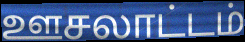
ஊசலாட்டம்